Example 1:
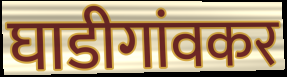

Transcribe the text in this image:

घाडीगांवकर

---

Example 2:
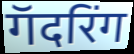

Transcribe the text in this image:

गॅदरिंग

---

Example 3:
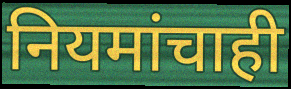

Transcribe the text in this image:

नियमांचाही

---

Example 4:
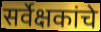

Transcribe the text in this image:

सर्वेक्षकांचे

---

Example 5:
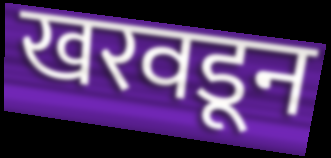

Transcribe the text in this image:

खरवडून